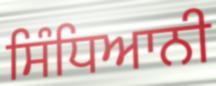
ਸਿੰਧਿਆਨੀ